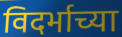
विदर्भाच्या